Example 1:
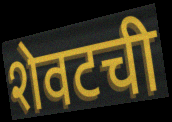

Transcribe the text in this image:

शेवटची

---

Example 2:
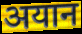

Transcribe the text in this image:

अयान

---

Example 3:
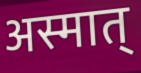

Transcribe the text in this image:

अस्मात्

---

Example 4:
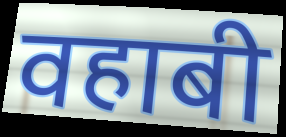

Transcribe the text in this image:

वहाबी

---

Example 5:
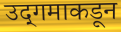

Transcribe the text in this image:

उद्‌गमाकडून